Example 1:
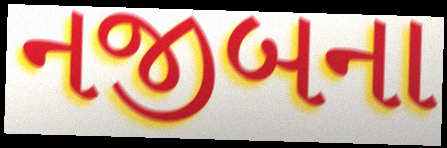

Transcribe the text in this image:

નજીબના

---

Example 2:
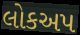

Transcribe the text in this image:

લોકઅપ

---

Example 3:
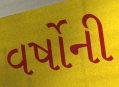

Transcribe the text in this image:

વર્ષોની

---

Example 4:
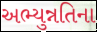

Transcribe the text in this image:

અભ્યુન્નતિના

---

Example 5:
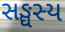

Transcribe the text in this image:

સઙ્ઘસ્ય